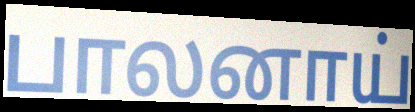
பாலனாய்